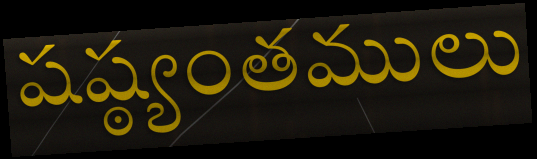
షష్ఠ్యంతములు